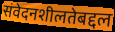
संवेदनशीलतेबद्दल